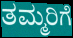
ತಮ್ಮರಿಗೆ